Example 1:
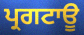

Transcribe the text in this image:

ਪ੍ਰਗਟਾਊ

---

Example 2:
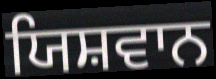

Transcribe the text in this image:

ਯਿਸ਼ਵਾਨ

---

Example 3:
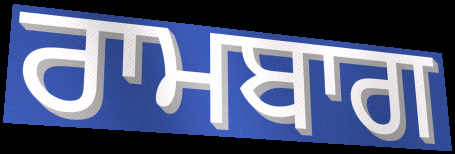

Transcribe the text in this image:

ਰਾਮਬਾਗ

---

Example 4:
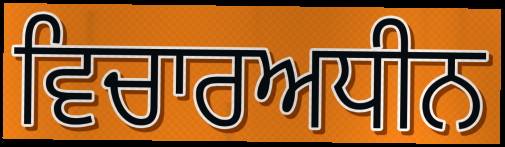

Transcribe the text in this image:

ਵਿਚਾਰਅਧੀਨ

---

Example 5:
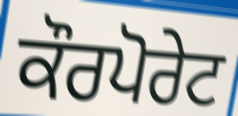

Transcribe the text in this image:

ਕੌਰਪੋਰੇਟ